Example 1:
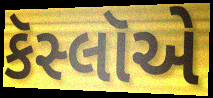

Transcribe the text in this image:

કૅસ્લૉએ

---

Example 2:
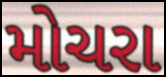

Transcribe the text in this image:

મોચરા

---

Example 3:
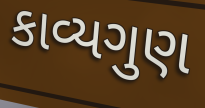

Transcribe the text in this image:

કાવ્યગુણ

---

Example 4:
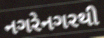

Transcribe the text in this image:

નગરેનગરથી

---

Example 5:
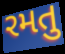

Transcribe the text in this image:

રમતુ